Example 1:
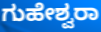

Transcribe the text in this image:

ಗುಹೇಶ್ವರಾ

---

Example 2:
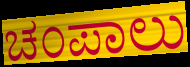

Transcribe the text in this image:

ಚಂಪಾಲು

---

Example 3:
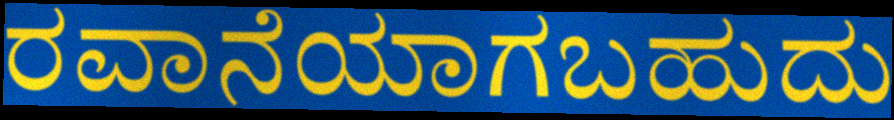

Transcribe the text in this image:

ರವಾನೆಯಾಗಬಹುದು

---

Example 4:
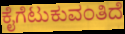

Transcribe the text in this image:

ಕೈಗೆಟುಕುವಂತಿದೆ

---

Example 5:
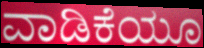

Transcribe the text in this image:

ವಾಡಿಕೆಯೂ